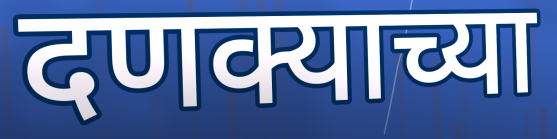
दणक्याच्या